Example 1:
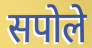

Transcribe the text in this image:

सपोले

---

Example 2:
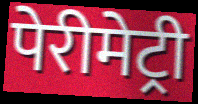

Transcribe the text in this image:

पेरीमेट्री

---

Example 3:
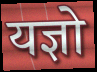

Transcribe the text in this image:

यज्ञो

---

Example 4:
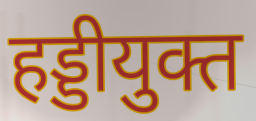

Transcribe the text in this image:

हड्डीयुक्त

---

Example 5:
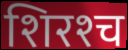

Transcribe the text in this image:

शिरश्च